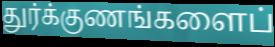
துர்க்குணங்களைப்